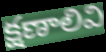
క్షణాలివి